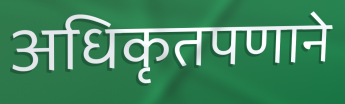
अधिकृतपणाने